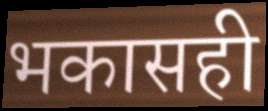
भकासही